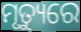
ମୃତ୍ୟୁରେ